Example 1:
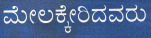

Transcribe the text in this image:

ಮೇಲಕ್ಕೇರಿದವರು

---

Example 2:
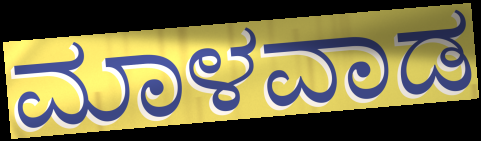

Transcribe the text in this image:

ಮಾಳವಾಡ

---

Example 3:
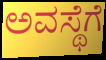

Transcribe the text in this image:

ಅವಸ್ಥೆಗೆ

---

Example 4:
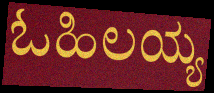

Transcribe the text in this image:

ಓಹಿಲಯ್ಯ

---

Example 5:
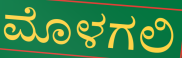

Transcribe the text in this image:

ಮೊಳಗಲಿ